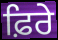
ਫ਼ਿਰੇ